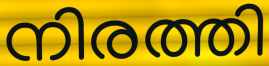
നിരത്തി